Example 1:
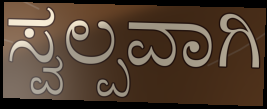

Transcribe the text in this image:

ಸ್ವಲ್ಪವಾಗಿ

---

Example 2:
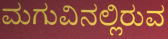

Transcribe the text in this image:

ಮಗುವಿನಲ್ಲಿರುವ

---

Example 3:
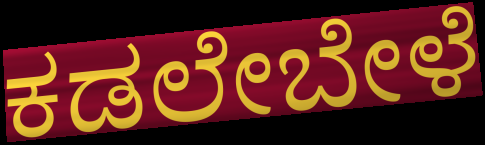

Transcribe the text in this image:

ಕಡಲೇಬೇಳೆ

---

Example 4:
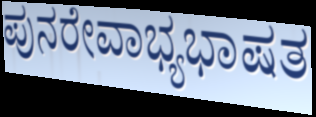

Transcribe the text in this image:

ಪುನರೇವಾಭ್ಯಭಾಷತ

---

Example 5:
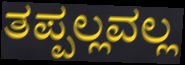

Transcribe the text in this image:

ತಪ್ಪಲ್ಲವಲ್ಲ